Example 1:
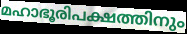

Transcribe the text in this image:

മഹാഭൂരിപക്ഷത്തിനും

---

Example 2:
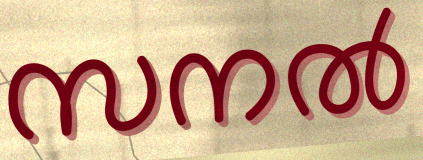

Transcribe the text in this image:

സനൽ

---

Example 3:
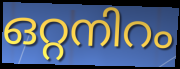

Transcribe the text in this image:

ഒറ്റനിറം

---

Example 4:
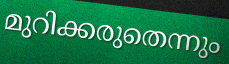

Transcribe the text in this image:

മുറിക്കരുതെന്നും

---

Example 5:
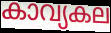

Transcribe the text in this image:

കാവ്യകല